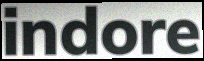
indore